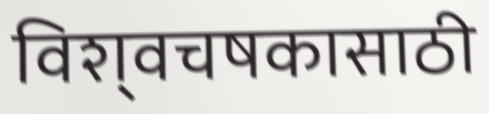
विश्वचषकासाठी